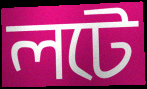
লটে